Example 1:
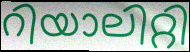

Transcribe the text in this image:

റിയാലിറ്റി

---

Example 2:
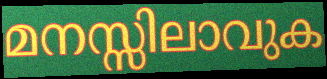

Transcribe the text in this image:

മനസ്സിലാവുക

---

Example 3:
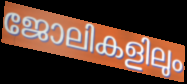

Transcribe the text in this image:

ജോലികളിലും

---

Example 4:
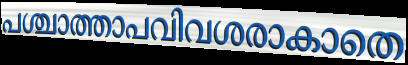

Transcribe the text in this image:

പശ്ചാത്താപവിവശരാകാതെ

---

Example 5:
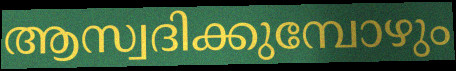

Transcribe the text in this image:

ആസ്വദിക്കുമ്പോഴും